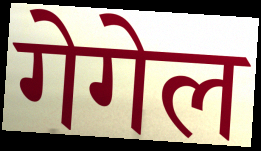
गेगेल